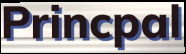
Princpal